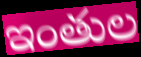
ఇంతుల